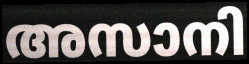
അസാനി